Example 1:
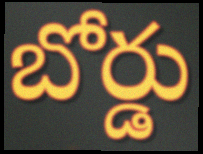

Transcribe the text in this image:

బోర్డు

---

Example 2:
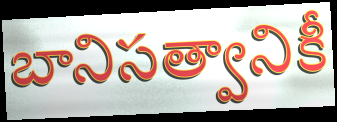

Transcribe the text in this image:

బానిసత్వానికీ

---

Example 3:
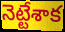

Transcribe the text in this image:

నెట్టేశాక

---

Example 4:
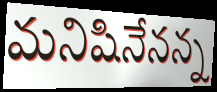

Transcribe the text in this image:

మనిషినేనన్న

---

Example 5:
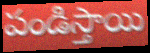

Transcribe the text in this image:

పండిస్తాయి